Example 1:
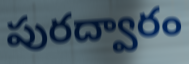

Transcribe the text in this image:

పురద్వారం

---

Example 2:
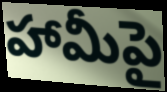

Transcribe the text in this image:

హామీపై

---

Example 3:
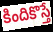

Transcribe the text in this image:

కిందికొస్తే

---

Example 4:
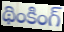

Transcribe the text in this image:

థింకింగ్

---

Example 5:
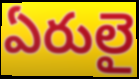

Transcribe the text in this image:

ఏరులై